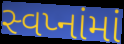
સ્વપ્નાંમાં